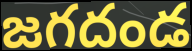
జగదండ